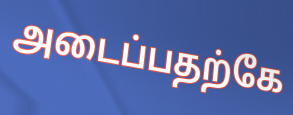
அடைப்பதற்கே